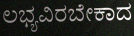
ಲಭ್ಯವಿರಬೇಕಾದ